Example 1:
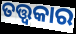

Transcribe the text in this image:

ତତ୍ତ୍ୱକାର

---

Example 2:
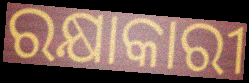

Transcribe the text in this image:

ରକ୍ଷାକାରୀ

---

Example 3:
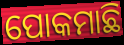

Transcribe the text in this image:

ପୋକମାଛି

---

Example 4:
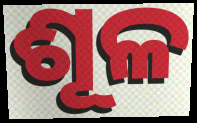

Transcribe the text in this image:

ଶୂଳ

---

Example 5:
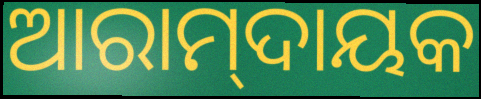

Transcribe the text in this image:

ଆରାମ୍‌ଦାୟକ